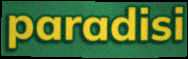
paradisi